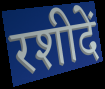
रशीदें